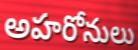
అహరోనులు